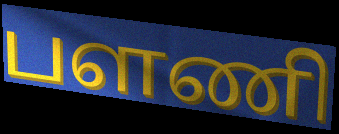
பளணி